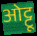
ओट्टू